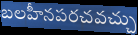
బలహీనపరచవచ్చు